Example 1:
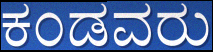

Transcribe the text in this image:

ಕಂಡವರು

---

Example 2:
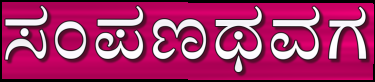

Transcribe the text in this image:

ಸಂಪಣಥವಗ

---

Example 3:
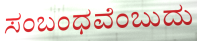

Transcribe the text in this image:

ಸಂಬಂಧವೆಂಬುದು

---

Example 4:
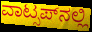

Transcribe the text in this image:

ವಾಟ್ಸಪ್‍ನಲ್ಲಿ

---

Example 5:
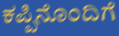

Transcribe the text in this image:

ಕಪ್ಪಿನೊಂದಿಗೆ